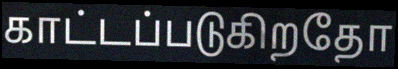
காட்டப்படுகிறதோ